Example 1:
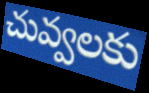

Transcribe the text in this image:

చువ్వలకు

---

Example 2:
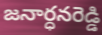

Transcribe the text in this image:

జనార్ధనరెడ్డి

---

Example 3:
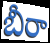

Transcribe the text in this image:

బీరా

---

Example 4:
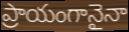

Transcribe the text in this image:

ప్రాయంగానైనా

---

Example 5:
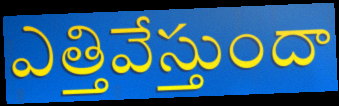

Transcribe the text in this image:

ఎత్తివేస్తుందా